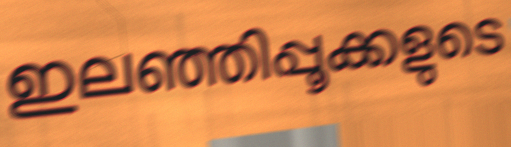
ഇലഞ്ഞിപ്പൂക്കളുടെ